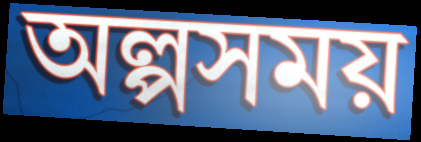
অল্পসময়